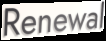
Renewal